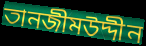
তানজীমউদ্দীন